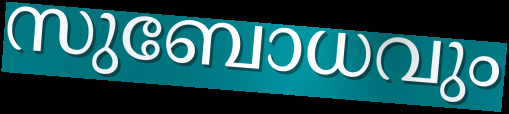
സുബോധവും